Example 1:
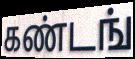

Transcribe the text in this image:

கண்டங்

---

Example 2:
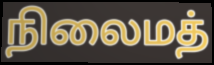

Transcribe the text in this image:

நிலைமத்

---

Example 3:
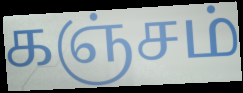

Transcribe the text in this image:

கஞ்சம்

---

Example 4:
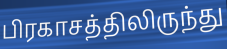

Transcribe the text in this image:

பிரகாசத்திலிருந்து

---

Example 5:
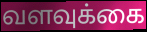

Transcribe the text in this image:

வளவுக்கை